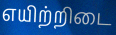
எயிற்றிடை